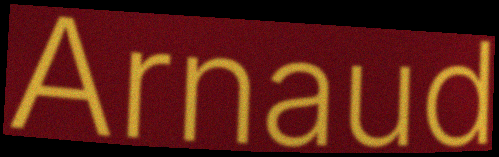
Arnaud